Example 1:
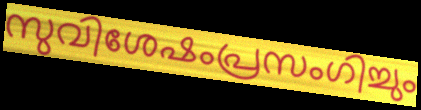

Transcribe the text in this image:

സുവിശേഷംപ്രസംഗിച്ചും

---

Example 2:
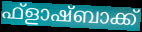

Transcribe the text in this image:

ഫ്ളാഷ്ബാക്ക്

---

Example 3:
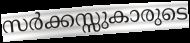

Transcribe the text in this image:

സർക്കസ്സുകാരുടെ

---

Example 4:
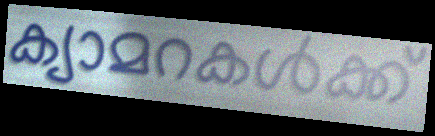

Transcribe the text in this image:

ക്യാമറകൾക്ക്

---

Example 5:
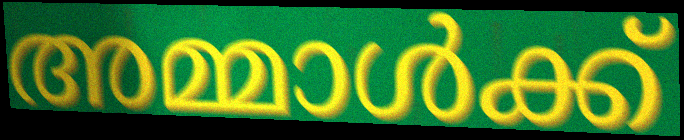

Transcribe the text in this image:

അമ്മാൾക്ക്